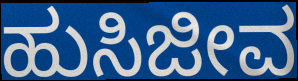
ಹುಸಿಜೀವ